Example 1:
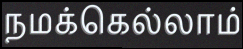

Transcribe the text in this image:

நமக்கெல்லாம்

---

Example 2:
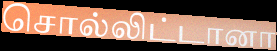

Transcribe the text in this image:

சொல்லிட்டானா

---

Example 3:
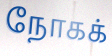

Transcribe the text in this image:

நோகக்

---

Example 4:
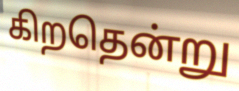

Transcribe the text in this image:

கிறதென்று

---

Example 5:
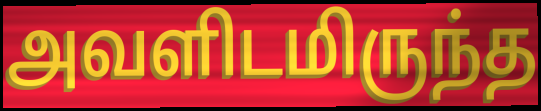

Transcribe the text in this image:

அவளிடமிருந்த